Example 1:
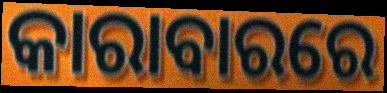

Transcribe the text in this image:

କାରାବାରରେ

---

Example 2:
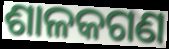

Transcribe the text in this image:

ଶାଳକଗଣ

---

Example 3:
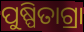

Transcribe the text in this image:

ପୁଷ୍ପିତାଗ୍ରା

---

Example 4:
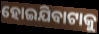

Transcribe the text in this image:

ହୋଇଯିବାଟାକୁ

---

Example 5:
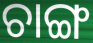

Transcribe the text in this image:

ଚାଙ୍ଗ